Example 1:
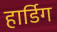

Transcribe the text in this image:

हार्डिग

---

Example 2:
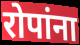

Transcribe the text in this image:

रोपांना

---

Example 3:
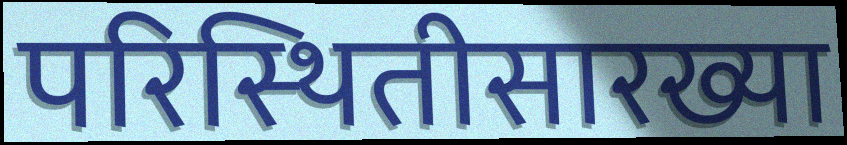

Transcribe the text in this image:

परिस्थितीसारख्या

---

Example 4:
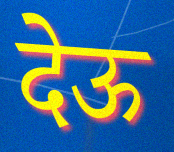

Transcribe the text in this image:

देऊ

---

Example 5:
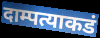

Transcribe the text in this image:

दाम्पत्याकडं